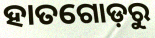
ହାତଗୋଡ଼ରୁ